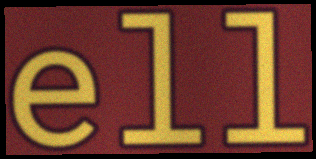
ell